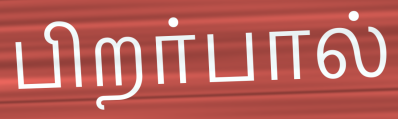
பிறர்பால்